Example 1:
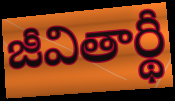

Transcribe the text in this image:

జీవితార్థీ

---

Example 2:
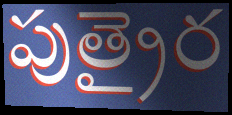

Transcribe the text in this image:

పుత్రైర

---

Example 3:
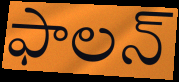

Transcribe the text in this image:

ఫాలన్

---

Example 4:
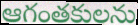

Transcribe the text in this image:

ఆగంతకులను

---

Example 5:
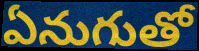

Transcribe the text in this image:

ఏనుగుతో